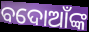
ବଦୋଆଁଙ୍କ